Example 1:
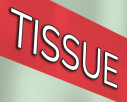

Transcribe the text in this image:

TISSUE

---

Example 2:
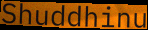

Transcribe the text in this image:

Shuddhinu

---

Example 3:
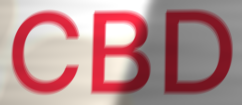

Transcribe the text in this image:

CBD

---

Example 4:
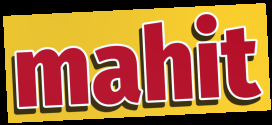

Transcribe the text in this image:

mahit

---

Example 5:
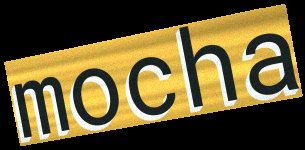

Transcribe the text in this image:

mocha